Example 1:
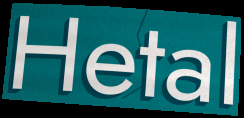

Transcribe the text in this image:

Hetal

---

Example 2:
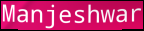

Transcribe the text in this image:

Manjeshwar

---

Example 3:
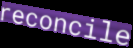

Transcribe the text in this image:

reconcile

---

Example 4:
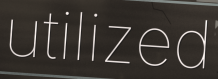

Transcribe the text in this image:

utilized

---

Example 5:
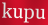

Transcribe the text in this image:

kupu